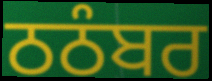
ਠਠੰਬਰ